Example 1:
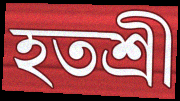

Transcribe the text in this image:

হতশ্রী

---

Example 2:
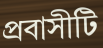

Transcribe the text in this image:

প্রবাসীটি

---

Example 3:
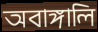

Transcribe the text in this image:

অবাঙ্গালি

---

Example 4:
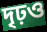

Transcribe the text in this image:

দৃঢ়ও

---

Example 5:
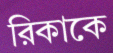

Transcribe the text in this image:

রিকাকে